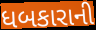
ધબકારાની